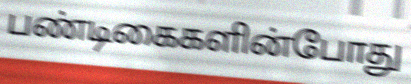
பண்டிகைகளின்போது